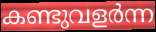
കണ്ടുവളർന്ന